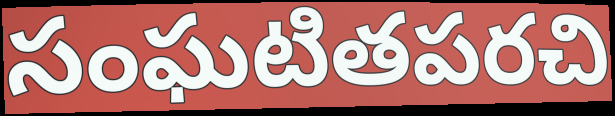
సంఘటితపరచి